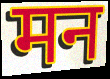
मन